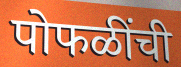
पोफळींची